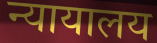
न्‍यायालय